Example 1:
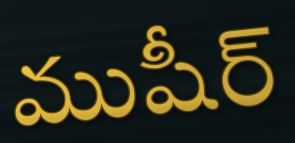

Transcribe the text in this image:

ముషీర్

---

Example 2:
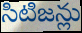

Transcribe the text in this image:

సిటిజన్లు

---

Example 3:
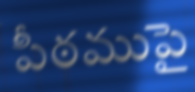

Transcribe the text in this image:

పీఠముపై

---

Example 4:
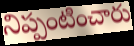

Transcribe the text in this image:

నిప్పంటించారు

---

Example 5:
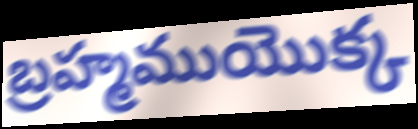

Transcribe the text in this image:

బ్రహ్మముయొక్క